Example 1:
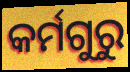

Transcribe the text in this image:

କର୍ମଗୁରୁ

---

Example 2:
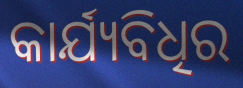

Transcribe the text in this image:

କାର୍ଯ୍ୟବିଧିର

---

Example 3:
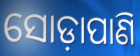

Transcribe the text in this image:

ସୋଡ଼ାପାଣି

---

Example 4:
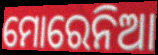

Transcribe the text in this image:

ମୋରେନିଆ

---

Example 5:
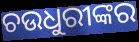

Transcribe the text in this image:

ଚଉଧୁରୀଙ୍କର